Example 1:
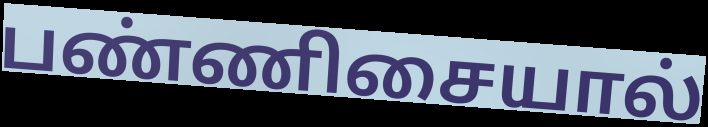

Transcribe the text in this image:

பண்ணிசையால்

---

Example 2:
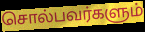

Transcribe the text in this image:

சொல்பவர்களும்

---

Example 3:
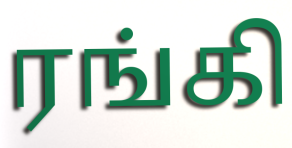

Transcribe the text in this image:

ரங்கி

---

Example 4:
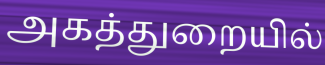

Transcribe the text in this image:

அகத்துறையில்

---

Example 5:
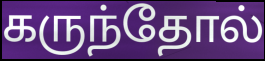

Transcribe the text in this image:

கருந்தோல்